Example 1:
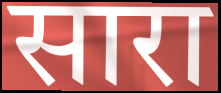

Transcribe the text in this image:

सारा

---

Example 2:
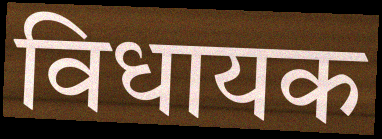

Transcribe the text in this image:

विधायक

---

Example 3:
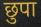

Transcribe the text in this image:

छुपा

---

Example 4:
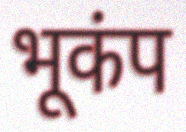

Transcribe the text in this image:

भूकंप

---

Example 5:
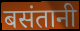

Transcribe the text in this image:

बसंतानी